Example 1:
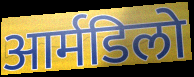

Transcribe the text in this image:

आर्मडिलो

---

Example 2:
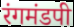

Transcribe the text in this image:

रंगमंडपी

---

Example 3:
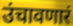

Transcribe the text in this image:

उंचावणारं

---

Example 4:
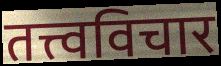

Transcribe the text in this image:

तत्त्वविचार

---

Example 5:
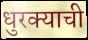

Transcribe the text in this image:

धुरक्याची